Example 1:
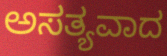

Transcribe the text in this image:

ಅಸತ್ಯವಾದ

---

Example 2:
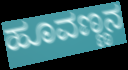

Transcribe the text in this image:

ಹೂವಣ್ಣನ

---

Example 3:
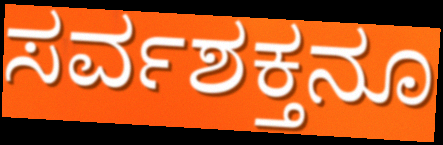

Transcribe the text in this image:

ಸರ್ವಶಕ್ತನೂ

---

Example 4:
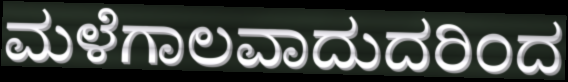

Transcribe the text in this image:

ಮಳೆಗಾಲವಾದುದರಿಂದ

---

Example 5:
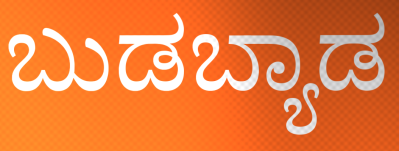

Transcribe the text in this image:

ಬುಡಬ್ಯಾಡ